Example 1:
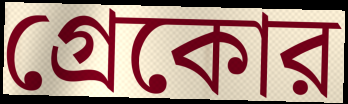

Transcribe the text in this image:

গ্রেকোর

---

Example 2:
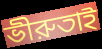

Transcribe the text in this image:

ভীরুতাই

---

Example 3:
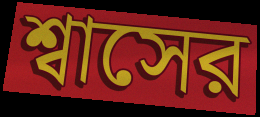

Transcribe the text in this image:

শ্বাসের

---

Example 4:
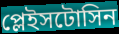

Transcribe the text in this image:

প্লেইসটোসিন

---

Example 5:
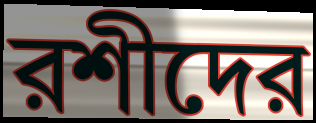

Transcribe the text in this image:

রশীদের